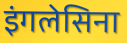
इंगलेसिना